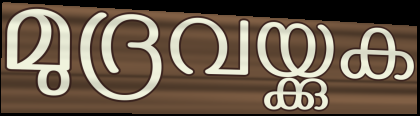
മുദ്രവയ്ക്കുക